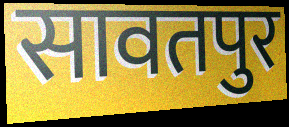
सावतपुर